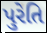
પુરેતિ